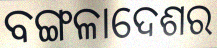
ବଙ୍ଗଳାଦେଶର